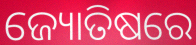
ଜ୍ୟୋତିଷରେ